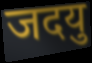
जदयु